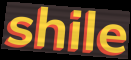
shile